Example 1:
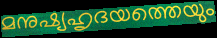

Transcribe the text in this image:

മനുഷ്യഹൃദയത്തെയും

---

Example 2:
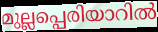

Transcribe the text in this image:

മുല്ലപ്പെരിയാറിൽ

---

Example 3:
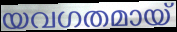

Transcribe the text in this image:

യവഗതമായ്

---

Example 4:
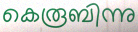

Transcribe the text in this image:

കെരൂബിന്നു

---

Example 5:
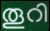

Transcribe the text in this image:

തൂറി